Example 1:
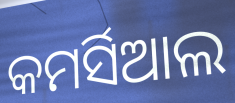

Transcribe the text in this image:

କମର୍ସିଆଲ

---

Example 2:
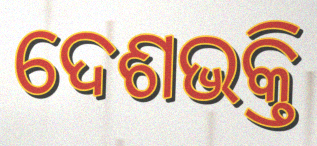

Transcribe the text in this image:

ଦେଶଭକ୍ତି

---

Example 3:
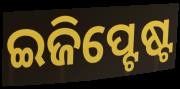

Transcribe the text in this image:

ଇଜିପ୍ଟେଷ୍ଟ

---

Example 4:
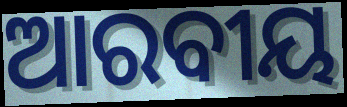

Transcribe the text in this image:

ଆରବୀୟ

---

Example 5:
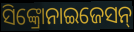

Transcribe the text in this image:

ସିଙ୍କ୍ରୋନାଇଜେସନ୍